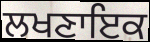
ਲਖਣਾਇਕ